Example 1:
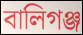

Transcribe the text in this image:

বালিগঞ্জ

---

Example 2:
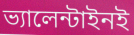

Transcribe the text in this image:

ভ্যালেন্টাইনই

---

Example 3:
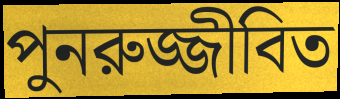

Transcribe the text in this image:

পুনরুজ্জীবিত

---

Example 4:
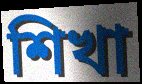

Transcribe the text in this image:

শিখা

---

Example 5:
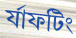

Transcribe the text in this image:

র্যাফটিং